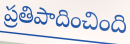
ప్రతిపాదించింది